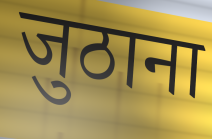
जुठाना